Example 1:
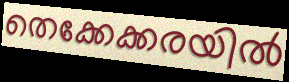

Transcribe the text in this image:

തെക്കേക്കരയിൽ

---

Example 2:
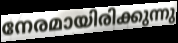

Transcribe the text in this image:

നേരമായിരിക്കുന്നു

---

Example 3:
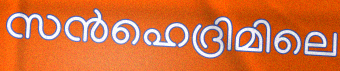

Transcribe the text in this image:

സൻഹെദ്രിമിലെ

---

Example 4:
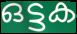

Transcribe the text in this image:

ഒട്ടക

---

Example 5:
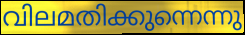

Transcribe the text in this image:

വിലമതിക്കുന്നെന്നു